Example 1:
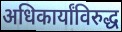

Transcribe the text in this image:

अधिकार्यांविरुद्ध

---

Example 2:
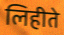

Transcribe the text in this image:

लिहीते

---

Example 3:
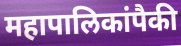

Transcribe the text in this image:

महापालिकांपैकी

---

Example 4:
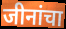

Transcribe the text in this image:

जीनांचा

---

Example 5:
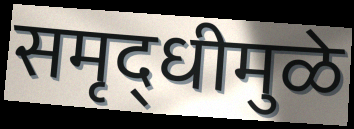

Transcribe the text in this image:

समृद्धीमुळे